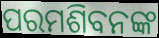
ପରମଶିବନଙ୍କ